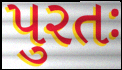
પુરતઃ